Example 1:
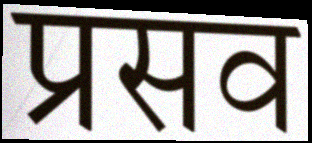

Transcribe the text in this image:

प्रसव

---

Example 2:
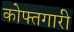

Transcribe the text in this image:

कोफ्तगारी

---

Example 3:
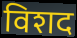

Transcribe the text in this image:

विशद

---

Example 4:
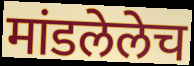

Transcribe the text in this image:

मांडलेलेच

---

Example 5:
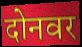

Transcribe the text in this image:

दोनवर